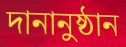
দানানুষ্ঠান